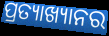
ପ୍ରତ୍ୟାଖ୍ୟାନର